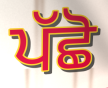
ਪੱਛੋ